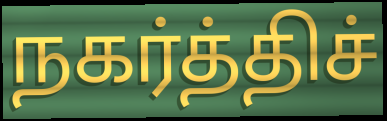
நகர்த்திச்